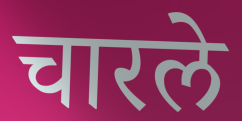
चारले